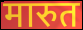
मारुत